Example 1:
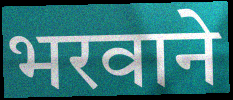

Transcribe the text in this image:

भरवाने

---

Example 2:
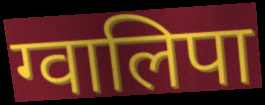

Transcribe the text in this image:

ग्वालिपा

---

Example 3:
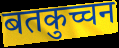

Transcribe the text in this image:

बतकुच्चन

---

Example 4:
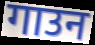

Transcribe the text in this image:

गाउन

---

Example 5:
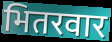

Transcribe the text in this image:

भितरवार